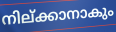
നില്ക്കാനാകും